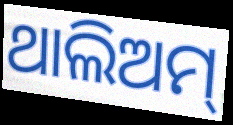
ଥାଲିଅମ୍